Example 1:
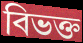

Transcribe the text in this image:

বিভক্ত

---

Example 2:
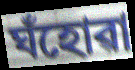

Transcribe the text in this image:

ঘঁহোৱা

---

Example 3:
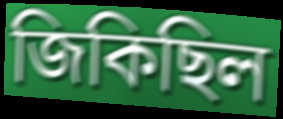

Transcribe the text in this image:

জিকিছিল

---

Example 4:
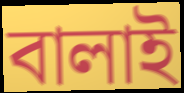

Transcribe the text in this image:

বালাই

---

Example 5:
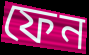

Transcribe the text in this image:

ফেন